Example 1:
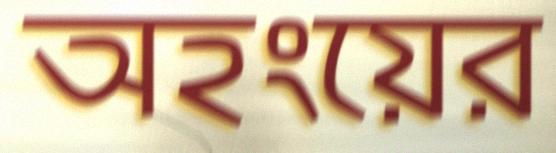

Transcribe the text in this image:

অহংয়ের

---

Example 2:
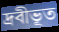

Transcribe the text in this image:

দ্রবীভূত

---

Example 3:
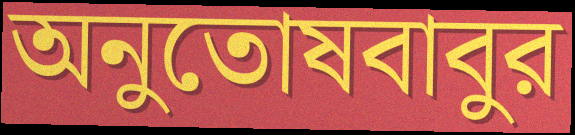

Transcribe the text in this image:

অনুতোষবাবুর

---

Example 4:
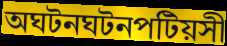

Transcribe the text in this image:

অঘটনঘটনপটিয়সী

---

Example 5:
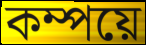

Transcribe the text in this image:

কম্পয়ে